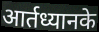
आर्तध्यानके